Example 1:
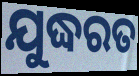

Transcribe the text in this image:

ଯୁଦ୍ଧରତ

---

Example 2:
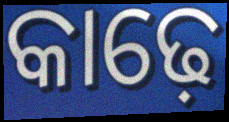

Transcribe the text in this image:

କାଢ଼େ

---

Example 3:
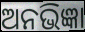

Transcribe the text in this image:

ଅନଭିଜ୍ଞା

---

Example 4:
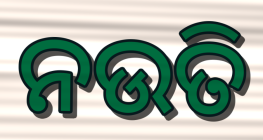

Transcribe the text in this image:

ନଉତି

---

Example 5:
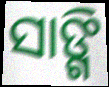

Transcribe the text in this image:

ସାଙ୍ଗି